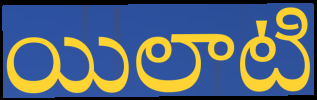
యిలాటి